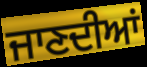
ਜਾਣਦੀਆਂ